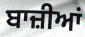
ਬਾਜ਼ੀਆਂ